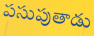
పసుపుతాడు